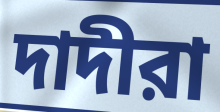
দাদীরা